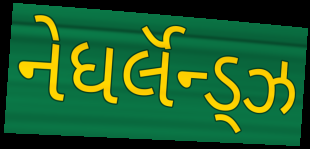
નેધર્લૅન્ડ્ઝ